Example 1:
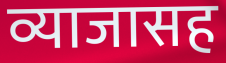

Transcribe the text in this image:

व्याजासह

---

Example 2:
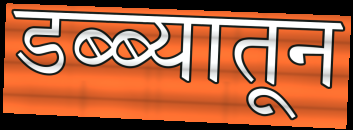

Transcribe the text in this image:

डब्ब्यातून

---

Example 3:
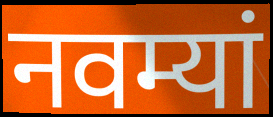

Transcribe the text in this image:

नवम्यां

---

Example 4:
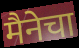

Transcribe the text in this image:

मैनेचा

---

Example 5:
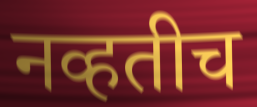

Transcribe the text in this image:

नव्हतीच